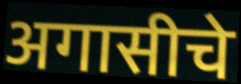
अगासीचे